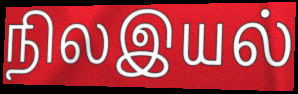
நிலஇயல்